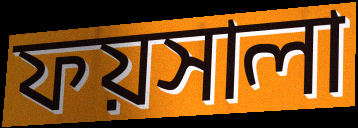
ফয়সালা